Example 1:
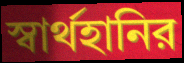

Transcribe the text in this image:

স্বার্থহানির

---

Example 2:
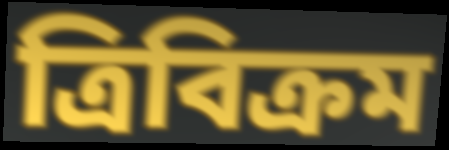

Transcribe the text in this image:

ত্রিবিক্রম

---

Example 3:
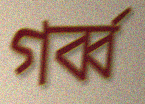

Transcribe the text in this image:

গর্ব্ব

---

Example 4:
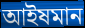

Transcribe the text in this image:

আইষমান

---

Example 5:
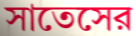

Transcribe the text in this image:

সাতেসের